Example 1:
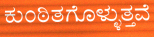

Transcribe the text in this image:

ಕುಂಠಿತಗೊಳ್ಳುತ್ತವೆ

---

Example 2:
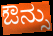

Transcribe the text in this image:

ಔನ್ಸು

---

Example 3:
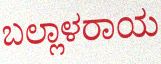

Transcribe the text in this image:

ಬಲ್ಲಾಳರಾಯ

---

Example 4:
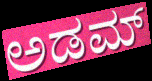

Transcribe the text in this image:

ಅಡಮ್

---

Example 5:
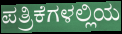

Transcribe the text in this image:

ಪತ್ರಿಕೆಗಳಲ್ಲಿಯ